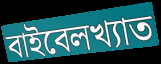
বাইবেলখ্যাত